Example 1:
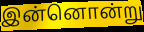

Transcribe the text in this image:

இன்னொன்று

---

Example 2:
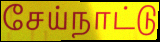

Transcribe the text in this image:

சேய்நாட்டு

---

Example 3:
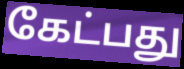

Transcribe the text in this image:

கேட்பது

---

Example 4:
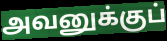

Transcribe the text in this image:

அவனுக்குப்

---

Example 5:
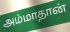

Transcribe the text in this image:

அம்மாதான்